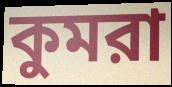
কুমরা